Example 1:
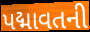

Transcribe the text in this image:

પદ્માવતની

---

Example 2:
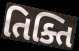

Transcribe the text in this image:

તિક્તિ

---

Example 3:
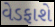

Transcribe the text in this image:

વેડફાશે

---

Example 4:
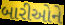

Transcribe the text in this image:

બારીઓને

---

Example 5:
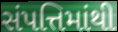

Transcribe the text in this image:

સંપત્તિમાંથી